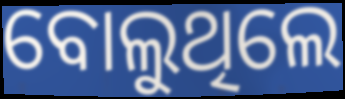
ବୋଲୁଥିଲେ